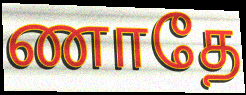
ணாதே